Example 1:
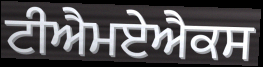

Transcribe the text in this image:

ਟੀਐਮਏਐਕਸ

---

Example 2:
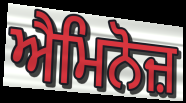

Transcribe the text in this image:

ਐਮਿਨੋਜ਼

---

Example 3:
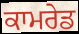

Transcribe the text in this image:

ਕਾਮਰੇਡ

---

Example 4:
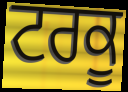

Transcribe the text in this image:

ਟਰਕੂ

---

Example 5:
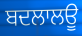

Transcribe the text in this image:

ਬਦਲਾਲਊ